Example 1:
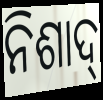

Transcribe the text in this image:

ନିଶାଦ୍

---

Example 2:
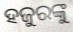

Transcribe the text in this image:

ହଜୁରଙ୍କୁ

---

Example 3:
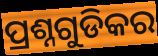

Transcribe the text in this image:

ପ୍ରଶ୍ନଗୁଡିକର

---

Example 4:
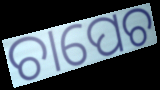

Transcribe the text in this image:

ଚାପେଚ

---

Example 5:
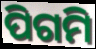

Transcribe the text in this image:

ପିଗମି